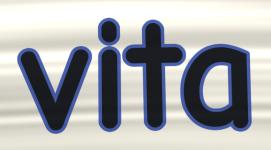
vita